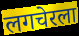
लगचेरला